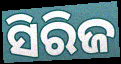
ସିରିଜ